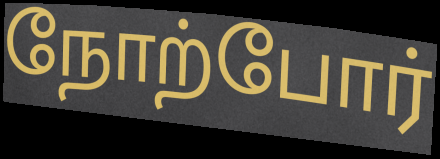
நோற்போர்